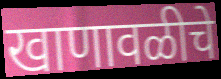
खाणावळीचे